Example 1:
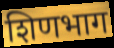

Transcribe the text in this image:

शिणभाग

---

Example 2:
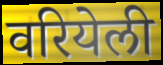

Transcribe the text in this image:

वरियेली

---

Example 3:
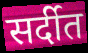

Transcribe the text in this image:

सर्दीत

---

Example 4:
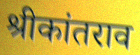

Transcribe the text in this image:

श्रीकांतराव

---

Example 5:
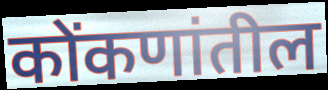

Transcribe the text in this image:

कोंकणांतील